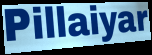
Pillaiyar